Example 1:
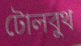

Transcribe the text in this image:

টোলবুথ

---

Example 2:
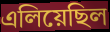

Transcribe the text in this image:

এলিয়েছিল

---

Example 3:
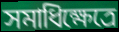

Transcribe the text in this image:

সমাধিক্ষেত্রে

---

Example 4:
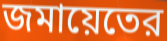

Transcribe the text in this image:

জমায়েতের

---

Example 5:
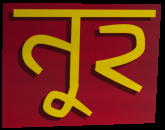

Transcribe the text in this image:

নুহ